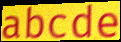
abcde